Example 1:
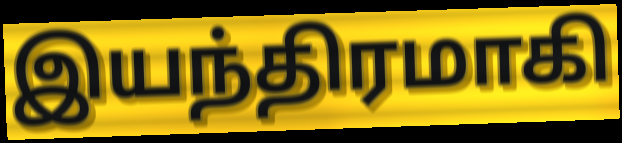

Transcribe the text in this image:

இயந்திரமாகி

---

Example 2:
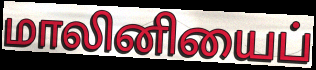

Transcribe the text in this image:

மாலினியைப்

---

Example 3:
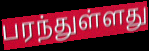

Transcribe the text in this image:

பரந்துள்ளது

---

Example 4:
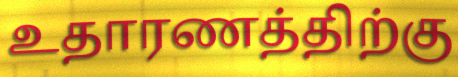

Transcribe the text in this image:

உதாரணத்திற்கு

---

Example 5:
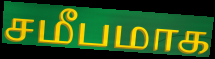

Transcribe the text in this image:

சமீபமாக